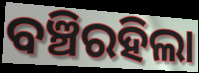
ବଞ୍ଚିରହିଲା